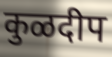
कुळदीप